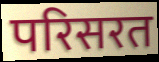
परिसरत